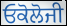
ਓਕੋਲੋਜੀ